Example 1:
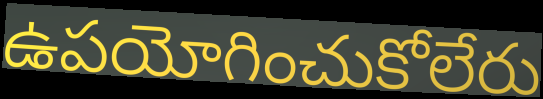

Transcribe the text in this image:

ఉపయోగించుకోలేరు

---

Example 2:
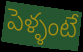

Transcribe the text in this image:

పెళ్ళంటే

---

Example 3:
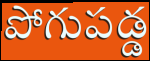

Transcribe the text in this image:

పోగుపడ్డ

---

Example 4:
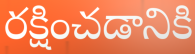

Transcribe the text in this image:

రక్షించడానికి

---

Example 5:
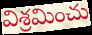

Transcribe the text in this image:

విశ్రమించు